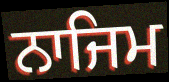
ਨਾਜਿਮ